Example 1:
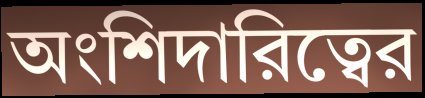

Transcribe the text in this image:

অংশিদারিত্বের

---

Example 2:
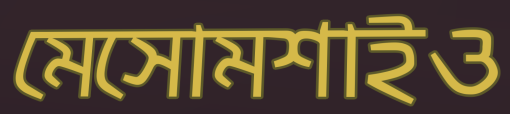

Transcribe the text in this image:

মেসোমশাইও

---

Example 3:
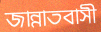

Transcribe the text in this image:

জান্নাতবাসী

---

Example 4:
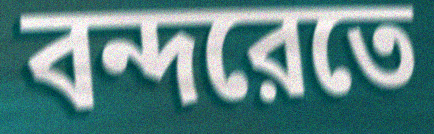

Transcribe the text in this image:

বন্দরেতে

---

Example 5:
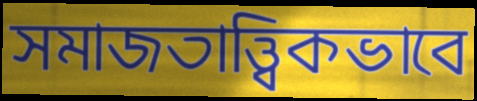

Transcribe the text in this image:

সমাজতাত্ত্বিকভাবে